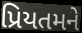
પ્રિયતમને